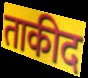
ताकीद